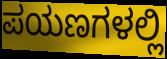
ಪಯಣಗಳಲ್ಲಿ